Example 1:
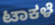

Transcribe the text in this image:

ಟಾಕಳೆ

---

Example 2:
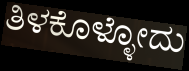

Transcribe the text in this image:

ತಿಳಕೊಳ್ಳೋದು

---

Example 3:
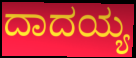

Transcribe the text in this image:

ದಾದಯ್ಯ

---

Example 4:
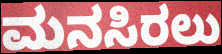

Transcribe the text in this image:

ಮನಸಿರಲು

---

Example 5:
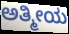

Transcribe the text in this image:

ಅತ್ಮೀಯ